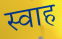
स्वाह